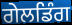
ਗੇਲਡਿੰਗ